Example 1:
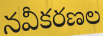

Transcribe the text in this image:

నవీకరణల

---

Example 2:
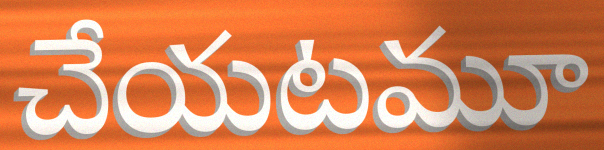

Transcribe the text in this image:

చేయటమూ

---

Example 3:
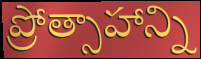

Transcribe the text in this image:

ప్రోత్సాహాన్ని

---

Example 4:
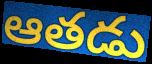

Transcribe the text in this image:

ఆతడు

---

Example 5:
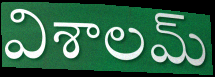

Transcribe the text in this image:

విశాలమ్